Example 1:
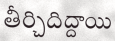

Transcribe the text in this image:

తీర్చిదిద్దాయి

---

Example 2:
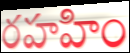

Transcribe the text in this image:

రహహిం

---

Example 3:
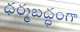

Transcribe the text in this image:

ధర్మబద్ధంగా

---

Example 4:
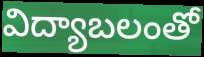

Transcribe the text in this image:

విద్యాబలంతో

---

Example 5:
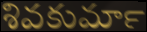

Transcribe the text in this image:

శివకుమార్‍